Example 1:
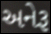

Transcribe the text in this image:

અનેરૂ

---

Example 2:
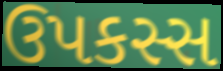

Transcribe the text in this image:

ઉપકસ્સ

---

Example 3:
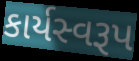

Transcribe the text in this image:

કાર્યસ્વરૂપ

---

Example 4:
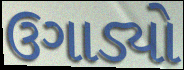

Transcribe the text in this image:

ઉગાડ્યો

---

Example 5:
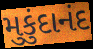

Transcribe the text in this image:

મુકુંદાનંદ